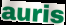
auris